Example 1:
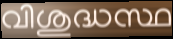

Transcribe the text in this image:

വിശുദ്ധസ്ഥ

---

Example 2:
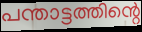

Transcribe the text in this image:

പന്താട്ടത്തിന്റെ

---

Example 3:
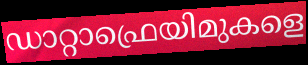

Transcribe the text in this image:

ഡാറ്റാഫ്രെയിമുകളെ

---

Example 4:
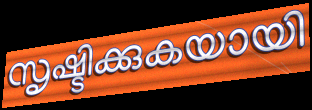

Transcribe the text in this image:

സൃഷ്ടിക്കുകയായി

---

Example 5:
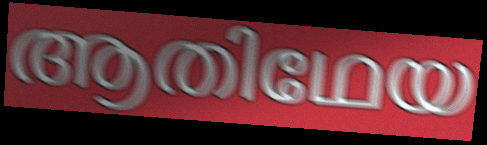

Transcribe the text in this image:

ആതിഥേയ